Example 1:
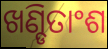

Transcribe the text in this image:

ଖଣ୍ଡିତାଂଶ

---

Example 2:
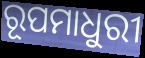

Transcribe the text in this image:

ରୂପମାଧୁରୀ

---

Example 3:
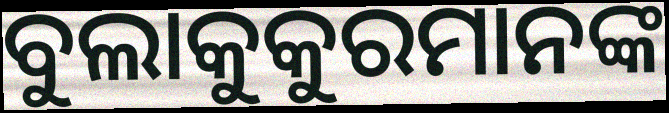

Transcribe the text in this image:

ବୁଲାକୁକୁରମାନଙ୍କ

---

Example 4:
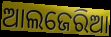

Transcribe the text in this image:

ଆଲଜେରିଆ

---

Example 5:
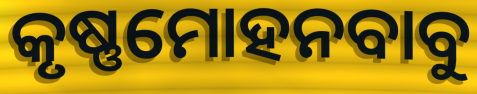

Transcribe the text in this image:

କୃଷ୍ଣମୋହନବାବୁ